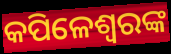
କପିଳେଶ୍ବରଙ୍କ